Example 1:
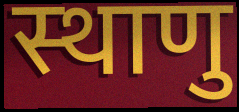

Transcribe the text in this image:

स्थाणु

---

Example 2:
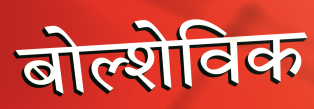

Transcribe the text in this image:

बोल्शेविक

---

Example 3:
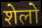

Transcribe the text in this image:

शेलो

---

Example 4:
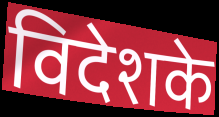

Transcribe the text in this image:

विदेशके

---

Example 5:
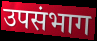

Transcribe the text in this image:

उपसंभाग